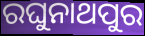
ରଘୁନାଥପୁର